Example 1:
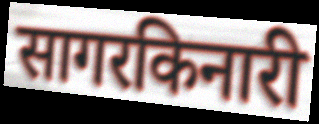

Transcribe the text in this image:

सागरकिनारी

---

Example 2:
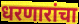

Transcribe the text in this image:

धरणारांचा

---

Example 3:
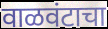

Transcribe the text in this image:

वाळवंटाचा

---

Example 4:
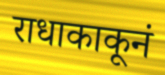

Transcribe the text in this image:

राधाकाकूनं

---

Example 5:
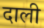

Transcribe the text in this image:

दाली